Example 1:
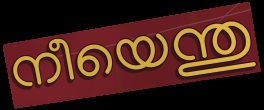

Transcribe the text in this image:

നീയെന്തു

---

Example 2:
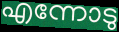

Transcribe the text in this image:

എന്നോടു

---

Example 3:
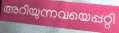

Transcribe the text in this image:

അറിയുന്നവയെപ്പറ്റി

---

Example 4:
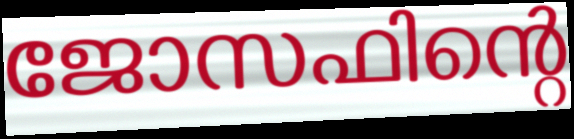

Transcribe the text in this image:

ജോസഫിന്റെ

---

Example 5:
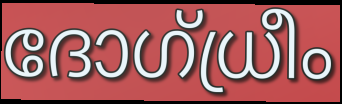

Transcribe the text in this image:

ദോഗ്ധ്രീം